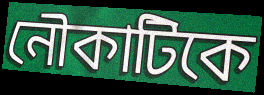
নৌকাটিকে